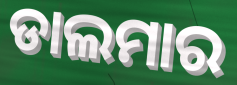
ଡାଲମାର